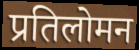
प्रतिलोमन